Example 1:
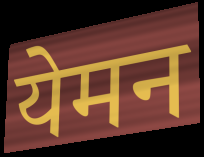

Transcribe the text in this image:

येमन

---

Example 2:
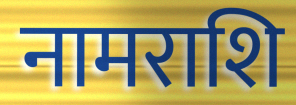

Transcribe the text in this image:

नामराशि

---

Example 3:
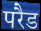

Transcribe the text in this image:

परैड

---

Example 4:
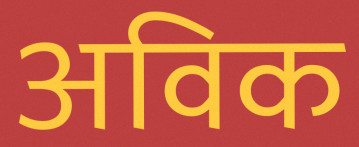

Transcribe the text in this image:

अविक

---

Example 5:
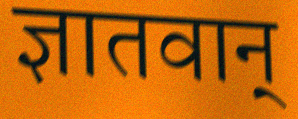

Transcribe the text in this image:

ज्ञातवान्